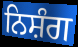
ਨਿਸ਼ੰਗ